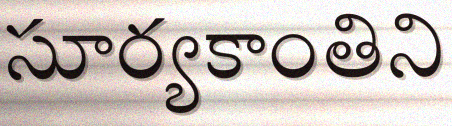
సూర్యకాంతిని